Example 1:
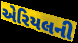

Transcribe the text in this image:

એરિયલની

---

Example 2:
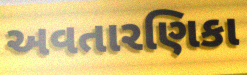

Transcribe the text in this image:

અવતારણિકા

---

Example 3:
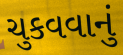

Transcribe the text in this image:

ચુકવવાનું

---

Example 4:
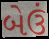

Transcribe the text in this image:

બેઉં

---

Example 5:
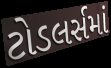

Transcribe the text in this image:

ટોડલર્સમાં